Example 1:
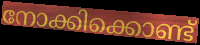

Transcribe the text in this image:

നോക്കിക്കൊണ്ട്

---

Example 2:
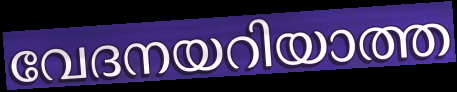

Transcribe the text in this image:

വേദനയറിയാത്ത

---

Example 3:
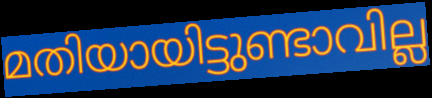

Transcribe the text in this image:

മതിയായിട്ടുണ്ടാവില്ല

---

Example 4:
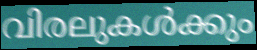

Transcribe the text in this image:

വിരലുകൾക്കും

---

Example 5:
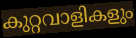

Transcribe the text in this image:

കുറ്റവാളികളും